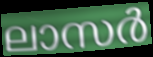
ലാസർ